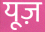
यूज़